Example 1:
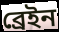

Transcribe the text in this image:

ব্ৰেইন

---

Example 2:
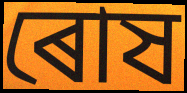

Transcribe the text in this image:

ৰোষ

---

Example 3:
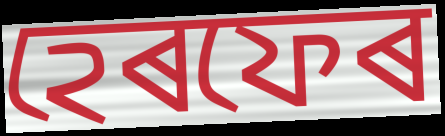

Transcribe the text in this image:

হেৰফেৰ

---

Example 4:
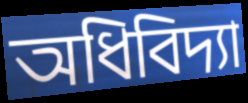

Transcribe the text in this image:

অধিবিদ্যা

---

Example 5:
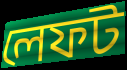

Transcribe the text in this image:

লেফট